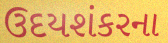
ઉદયશંકરના